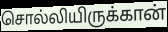
சொல்லியிருக்கான்